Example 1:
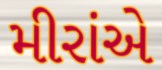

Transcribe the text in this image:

મીરાંએ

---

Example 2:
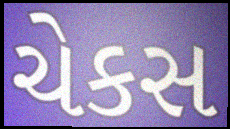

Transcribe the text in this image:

ચેકસ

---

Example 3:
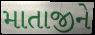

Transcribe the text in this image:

માતાજીને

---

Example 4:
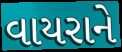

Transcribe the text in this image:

વાયરાને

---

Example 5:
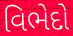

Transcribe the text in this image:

વિભેદો